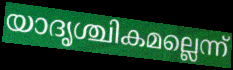
യാദൃശ്ചികമല്ലെന്ന്